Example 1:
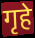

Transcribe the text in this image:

गृहे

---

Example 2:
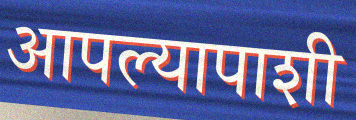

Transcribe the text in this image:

आपल्यापाशी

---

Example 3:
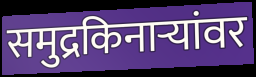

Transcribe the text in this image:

समुद्रकिनाऱ्यांवर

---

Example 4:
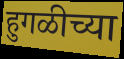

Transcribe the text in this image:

हुगळीच्या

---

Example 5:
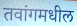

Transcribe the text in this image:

तवांगमधील